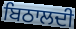
ਬਿਠਾਲਦੀ